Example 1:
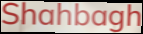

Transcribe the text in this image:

Shahbagh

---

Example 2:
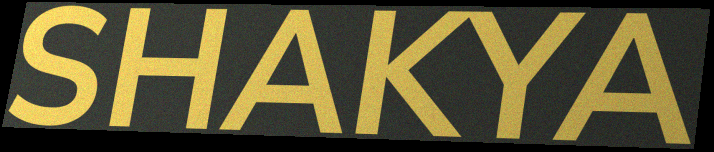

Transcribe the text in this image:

SHAKYA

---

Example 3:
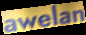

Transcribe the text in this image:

awelan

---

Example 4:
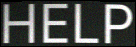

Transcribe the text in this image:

HELP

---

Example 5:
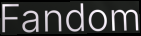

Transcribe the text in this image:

Fandom